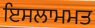
ਇਸਲਾਮਮਤ